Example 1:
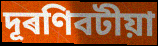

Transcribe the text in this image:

দূৰণিবটীয়া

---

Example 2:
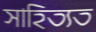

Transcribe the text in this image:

সাহিত্যত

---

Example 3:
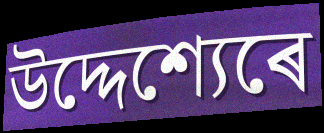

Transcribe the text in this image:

উদ্দেশ্যেৰে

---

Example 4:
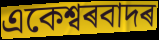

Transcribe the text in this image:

একেশ্বৰবাদৰ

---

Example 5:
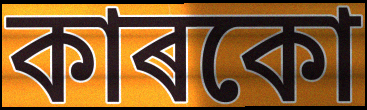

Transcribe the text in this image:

কাৰকো